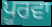
ਪੂਰਵਾ